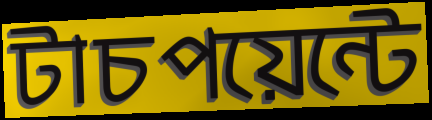
টাচপয়েন্টে